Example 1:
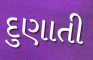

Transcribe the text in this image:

દુણાતી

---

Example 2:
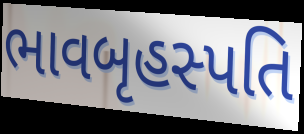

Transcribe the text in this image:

ભાવબૃહસ્પતિ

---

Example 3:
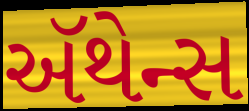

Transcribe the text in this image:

ઍથેન્સ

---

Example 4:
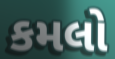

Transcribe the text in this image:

કમલો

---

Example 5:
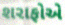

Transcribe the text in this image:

શરાફોએ